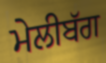
ਮੇਲੀਬੱਗ